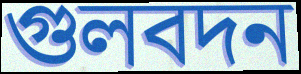
গুলবদন